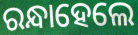
ରନ୍ଧାହେଲେ